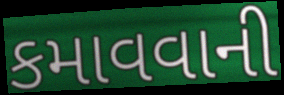
કમાવવાની